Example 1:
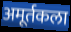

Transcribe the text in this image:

अमूर्तकला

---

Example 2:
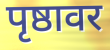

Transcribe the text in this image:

पृष्ठावर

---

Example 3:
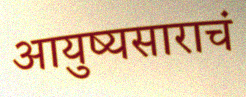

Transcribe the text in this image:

आयुष्यसाराचं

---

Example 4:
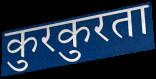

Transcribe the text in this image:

कुरकुरता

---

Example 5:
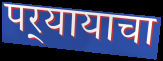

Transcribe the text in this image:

पर्यायाचा